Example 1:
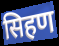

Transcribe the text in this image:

सिहण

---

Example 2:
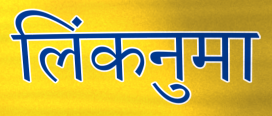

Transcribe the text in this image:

लिंकनुमा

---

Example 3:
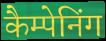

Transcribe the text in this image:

कैम्पेनिंग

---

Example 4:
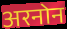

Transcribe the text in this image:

अरनोन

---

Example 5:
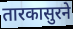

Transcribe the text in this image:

तारकासुरने